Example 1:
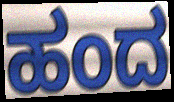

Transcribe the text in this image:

ಹಂದ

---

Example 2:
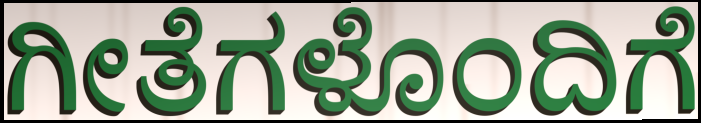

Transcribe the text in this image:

ಗೀತೆಗಳೊಂದಿಗೆ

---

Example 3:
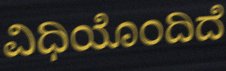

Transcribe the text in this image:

ವಿಧಿಯೊಂದಿದೆ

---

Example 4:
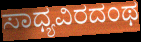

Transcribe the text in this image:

ಸಾಧ್ಯವಿರದಂಥ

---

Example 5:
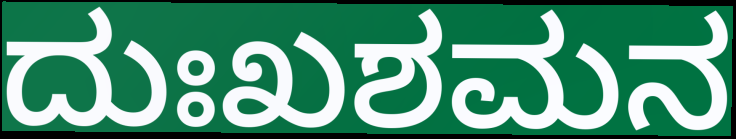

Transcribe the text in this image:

ದುಃಖಶಮನ